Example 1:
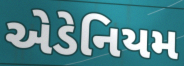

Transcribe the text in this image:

એડેનિયમ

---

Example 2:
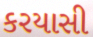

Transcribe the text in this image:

કરયાસી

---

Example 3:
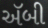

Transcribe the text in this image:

ઍબી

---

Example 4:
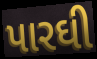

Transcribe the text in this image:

પારઘી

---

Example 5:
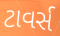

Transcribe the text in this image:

ટાવર્સ